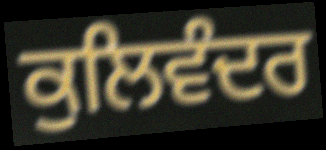
ਕੁਲਿਵੰਦਰ